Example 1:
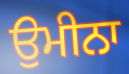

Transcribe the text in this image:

ਉਮੀਨਾ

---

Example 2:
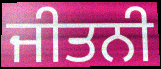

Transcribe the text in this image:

ਜੀਤਨੀ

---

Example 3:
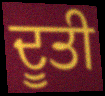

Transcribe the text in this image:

ਦੂਤੀ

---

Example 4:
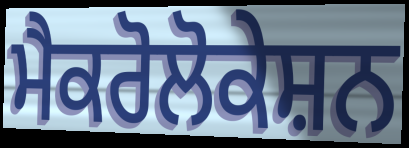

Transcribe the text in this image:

ਮੈਕਰੋਲੋਕੇਸ਼ਨ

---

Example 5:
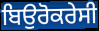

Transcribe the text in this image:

ਬਿਉਰੋਕਰੇਸੀ